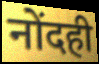
नोंदही